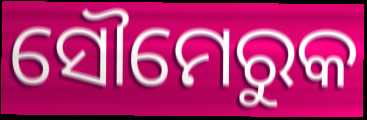
ସୌମେରୁକ